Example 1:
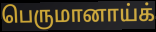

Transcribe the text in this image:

பெருமானாய்க்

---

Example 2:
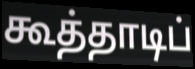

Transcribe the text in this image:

கூத்தாடிப்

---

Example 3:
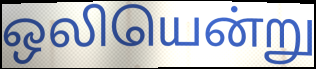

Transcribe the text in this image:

ஒலியென்று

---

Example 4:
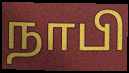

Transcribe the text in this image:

நாபி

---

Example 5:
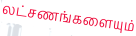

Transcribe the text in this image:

லட்சணங்களையும்